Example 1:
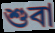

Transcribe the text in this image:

শুবা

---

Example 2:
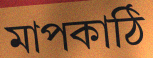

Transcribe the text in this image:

মাপকাঠি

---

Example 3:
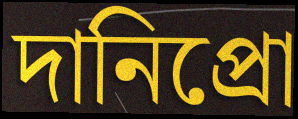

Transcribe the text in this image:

দানিপ্রো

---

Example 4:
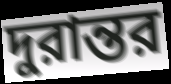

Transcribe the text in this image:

দুরান্তর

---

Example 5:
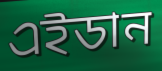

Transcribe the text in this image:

এইডান